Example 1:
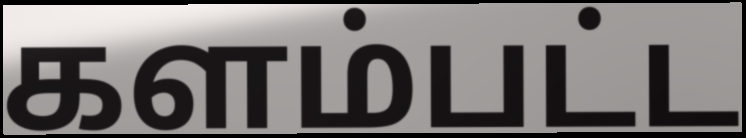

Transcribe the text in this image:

களம்பட்ட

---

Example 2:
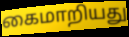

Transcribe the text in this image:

கைமாறியது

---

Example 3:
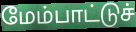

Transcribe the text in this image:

மேம்பாட்டுச்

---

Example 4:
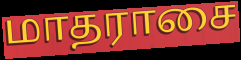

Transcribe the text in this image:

மாதராசை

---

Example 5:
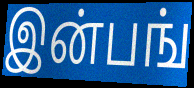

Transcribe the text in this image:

இன்பங்